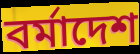
বর্মাদেশ